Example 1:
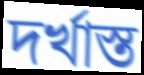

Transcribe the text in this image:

দৰ্খাস্ত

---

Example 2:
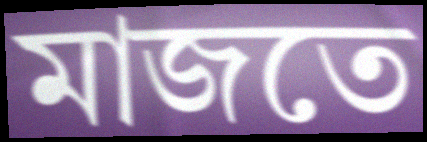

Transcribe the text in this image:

মাজতে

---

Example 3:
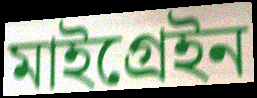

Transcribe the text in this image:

মাইগ্ৰেইন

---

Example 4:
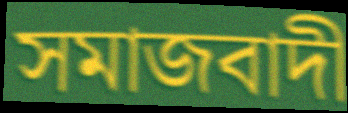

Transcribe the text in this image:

সমাজবাদী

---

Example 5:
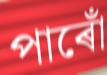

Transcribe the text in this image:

পাৰোঁ